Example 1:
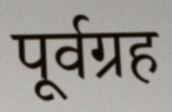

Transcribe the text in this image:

पूर्वग्रह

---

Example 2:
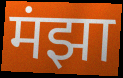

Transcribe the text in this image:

मंझा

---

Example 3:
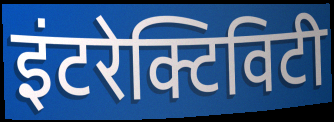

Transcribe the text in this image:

इंटरेक्टिविटी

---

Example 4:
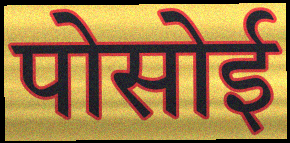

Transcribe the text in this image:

पोसोई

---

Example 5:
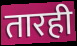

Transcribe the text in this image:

तारही